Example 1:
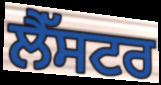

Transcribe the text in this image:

ਲੈੱਸਟਰ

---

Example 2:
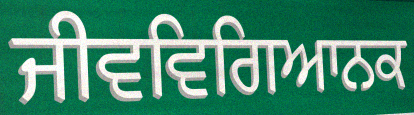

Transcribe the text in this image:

ਜੀਵਵਿਗਿਆਨਕ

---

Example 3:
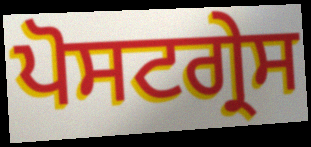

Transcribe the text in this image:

ਪੋਸਟਗ੍ਰੇਸ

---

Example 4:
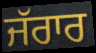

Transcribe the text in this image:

ਜੱਰਾਰ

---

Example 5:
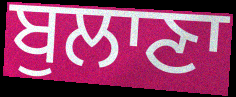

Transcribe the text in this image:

ਬੁਲਾਣਾ